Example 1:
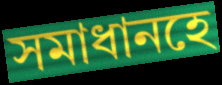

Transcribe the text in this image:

সমাধানহে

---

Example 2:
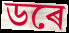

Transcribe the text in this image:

ডৰে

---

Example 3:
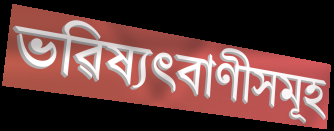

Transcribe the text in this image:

ভৱিষ্যৎবাণীসমূহ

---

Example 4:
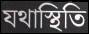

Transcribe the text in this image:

যথাস্থিতি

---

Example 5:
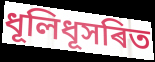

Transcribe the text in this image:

ধূলিধূসৰিত